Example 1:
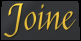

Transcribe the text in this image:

Joine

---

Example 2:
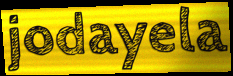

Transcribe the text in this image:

jodayela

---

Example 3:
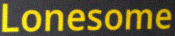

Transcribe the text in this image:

Lonesome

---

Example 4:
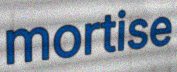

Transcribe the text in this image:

mortise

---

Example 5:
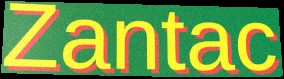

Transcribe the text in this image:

Zantac